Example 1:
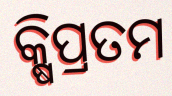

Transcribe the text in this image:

କ୍ଷିପ୍ରତମ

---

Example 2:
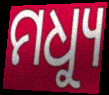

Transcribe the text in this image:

ମଧ୍ୟୁ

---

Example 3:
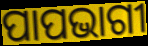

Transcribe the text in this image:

ପାପଭାଗୀ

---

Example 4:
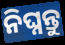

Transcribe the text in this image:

ନିଘ୍ନନ୍ତୁ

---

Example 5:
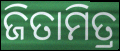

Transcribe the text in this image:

ଜିତାମିତ୍ର